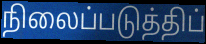
நிலைப்படுத்திப்